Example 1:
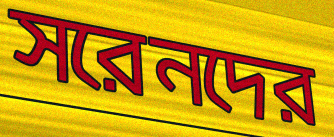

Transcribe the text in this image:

সরেনদের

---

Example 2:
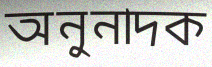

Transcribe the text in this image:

অনুনাদক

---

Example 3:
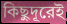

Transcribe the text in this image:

কিছুদূরেই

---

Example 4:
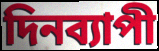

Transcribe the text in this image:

দিনব্যাপী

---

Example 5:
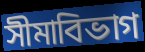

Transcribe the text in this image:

সীমাবিভাগ